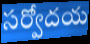
సర్వోదయ